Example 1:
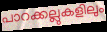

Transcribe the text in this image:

പാറക്കല്ലുകളിലും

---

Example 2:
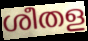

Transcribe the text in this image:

ശീതള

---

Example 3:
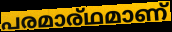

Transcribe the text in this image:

പരമാര്ഥമാണ്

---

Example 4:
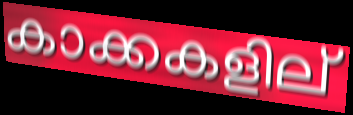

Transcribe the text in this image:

കാക്കകളില്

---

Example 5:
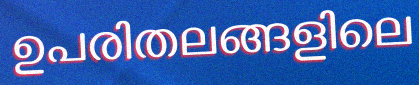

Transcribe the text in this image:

ഉപരിതലങ്ങളിലെ